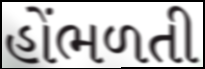
હોંભળતી